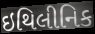
ઇથિલીનિક